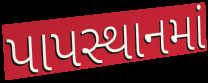
પાપસ્થાનમાં